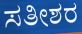
ಸತೀಶರ